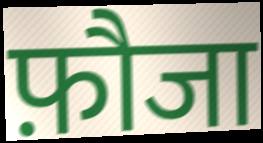
फ़ौजा